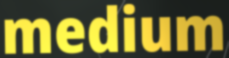
medium